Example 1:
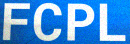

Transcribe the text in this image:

FCPL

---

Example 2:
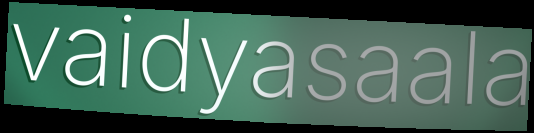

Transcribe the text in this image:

vaidyasaala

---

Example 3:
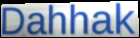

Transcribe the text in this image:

Dahhak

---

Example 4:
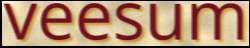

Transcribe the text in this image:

veesum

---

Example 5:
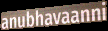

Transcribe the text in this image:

anubhavaanni